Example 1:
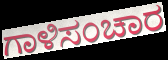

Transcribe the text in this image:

ಗಾಳಿಸಂಚಾರ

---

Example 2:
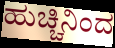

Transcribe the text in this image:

ಹುಚ್ಚಿನಿಂದ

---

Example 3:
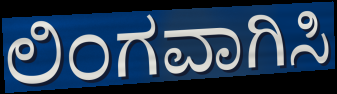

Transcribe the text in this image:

ಲಿಂಗವಾಗಿಸಿ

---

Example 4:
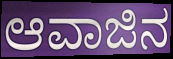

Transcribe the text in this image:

ಆವಾಜಿನ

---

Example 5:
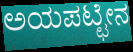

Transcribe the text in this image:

ಅಯಪಟ್ಟೇನ